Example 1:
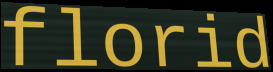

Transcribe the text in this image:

florid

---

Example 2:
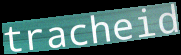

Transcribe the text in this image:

tracheid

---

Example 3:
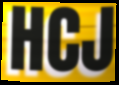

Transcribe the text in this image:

HCJ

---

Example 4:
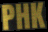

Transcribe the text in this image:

PHK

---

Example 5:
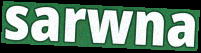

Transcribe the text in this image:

sarwna